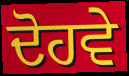
ਦੋਹਵੇ